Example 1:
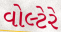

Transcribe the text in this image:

વોલ્ટેરે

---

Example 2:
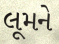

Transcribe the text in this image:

લૂમને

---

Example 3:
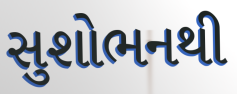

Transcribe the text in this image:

સુશોભનથી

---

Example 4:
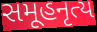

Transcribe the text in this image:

સમૂહનૃત્ય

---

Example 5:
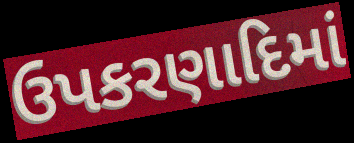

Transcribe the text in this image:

ઉપકરણાદિમાં